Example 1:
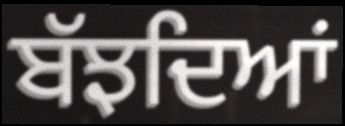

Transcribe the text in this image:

ਬੱਝਦਿਆਂ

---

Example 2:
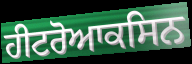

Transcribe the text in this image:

ਹੀਟਰੋਆਕਸਿਨ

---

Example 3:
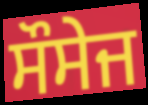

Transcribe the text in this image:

ਸੌਸੇਜ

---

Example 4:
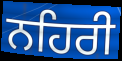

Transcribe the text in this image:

ਨਹਿਰੀ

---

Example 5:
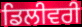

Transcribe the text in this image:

ਡਿਲੀਵਰੀ